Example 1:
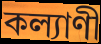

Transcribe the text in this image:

কল্যাণী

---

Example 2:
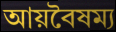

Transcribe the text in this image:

আয়বৈষম্য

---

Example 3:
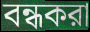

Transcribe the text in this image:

বন্ধকরা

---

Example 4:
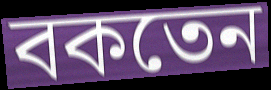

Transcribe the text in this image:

বকতেন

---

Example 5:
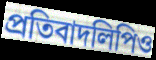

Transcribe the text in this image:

প্রতিবাদলিপিও